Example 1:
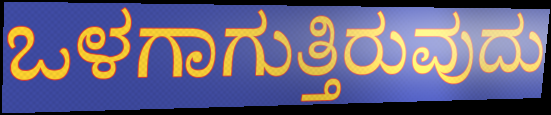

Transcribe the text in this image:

ಒಳಗಾಗುತ್ತಿರುವುದು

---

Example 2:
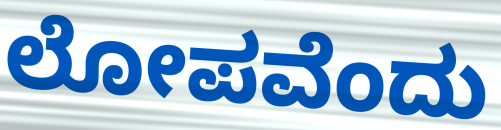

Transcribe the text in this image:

ಲೋಪವೆಂದು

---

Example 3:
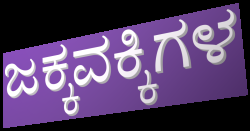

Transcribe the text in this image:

ಜಕ್ಕವಕ್ಕಿಗಳ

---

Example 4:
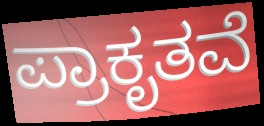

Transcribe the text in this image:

ಪ್ರಾಕೃತವೆ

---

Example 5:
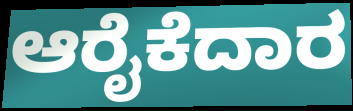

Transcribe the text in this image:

ಆರೈಕೆದಾರ